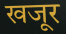
खजूर